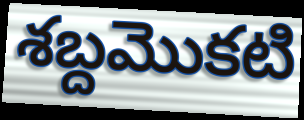
శబ్దమొకటి